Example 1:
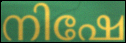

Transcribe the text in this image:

നിഷേ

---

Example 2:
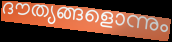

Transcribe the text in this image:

ദൗത്യങ്ങളൊന്നും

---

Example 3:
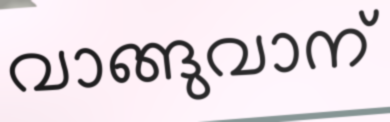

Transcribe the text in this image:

വാങ്ങുവാന്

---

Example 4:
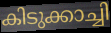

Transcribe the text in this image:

കിടുക്കാച്ചി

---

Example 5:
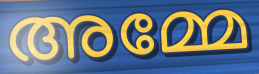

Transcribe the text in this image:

അമ്മേ